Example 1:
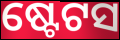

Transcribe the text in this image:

ଷ୍ଟେଟସ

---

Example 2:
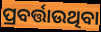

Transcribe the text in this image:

ପ୍ରବର୍ତ୍ତାଉଥିବା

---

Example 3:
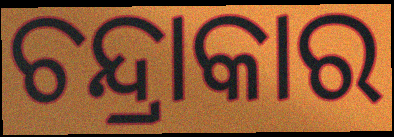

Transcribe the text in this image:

ଚନ୍ଦ୍ରାକାର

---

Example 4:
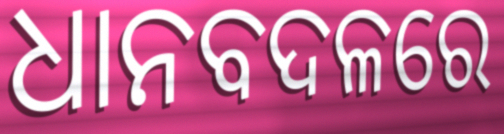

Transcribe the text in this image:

ଧାନବଦଳରେ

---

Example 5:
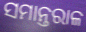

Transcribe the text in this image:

ସମାନ୍ତରାଳ